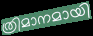
ത്രിമാനമായി